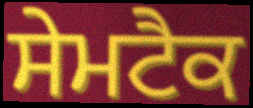
ਸੇਮਟੈਕ